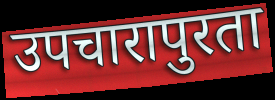
उपचारापुरता